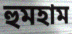
হুমহাম